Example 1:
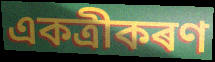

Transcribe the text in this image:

একত্ৰীকৰণ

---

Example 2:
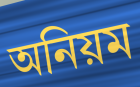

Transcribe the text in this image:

অনিয়ম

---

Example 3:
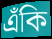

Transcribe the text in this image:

এঁকি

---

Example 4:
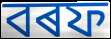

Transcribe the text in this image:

বৰফ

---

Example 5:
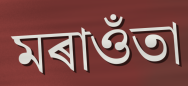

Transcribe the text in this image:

মৰাওঁতা